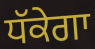
ਧੱਕੇਗਾ